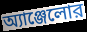
অ্যাঞ্জেলোর